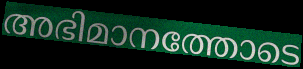
അഭിമാനത്തോടെ